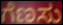
ಗೆಣಸು